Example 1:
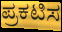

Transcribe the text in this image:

ಪ್ರಕಟಿಸ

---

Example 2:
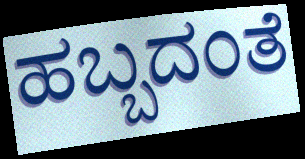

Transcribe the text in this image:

ಹಬ್ಬದಂತೆ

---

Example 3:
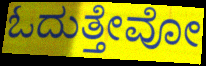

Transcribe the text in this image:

ಓದುತ್ತೇವೋ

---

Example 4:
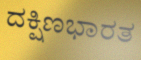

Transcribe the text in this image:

ದಕ್ಷಿಣಭಾರತ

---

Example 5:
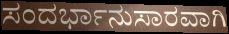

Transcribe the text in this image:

ಸಂದರ್ಭಾನುಸಾರವಾಗಿ